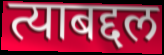
त्याबद्दल